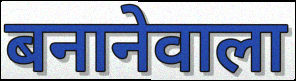
बनानेवाला